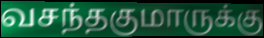
வசந்தகுமாருக்கு